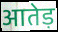
आतेड़